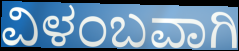
ವಿಳಂಬವಾಗಿ